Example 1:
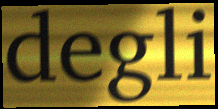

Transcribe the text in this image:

degli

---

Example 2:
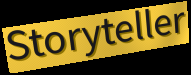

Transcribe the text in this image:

Storyteller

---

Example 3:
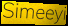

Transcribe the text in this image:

Simeeyi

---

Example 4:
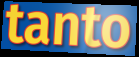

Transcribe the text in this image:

tanto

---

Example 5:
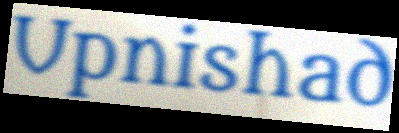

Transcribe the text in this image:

Upnishad